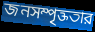
জনসম্পৃক্ততার